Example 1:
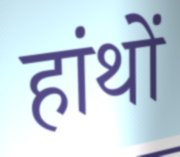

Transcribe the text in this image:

हांथों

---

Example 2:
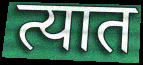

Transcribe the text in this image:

त्यात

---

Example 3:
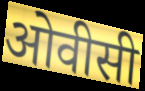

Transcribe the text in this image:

ओवीसी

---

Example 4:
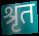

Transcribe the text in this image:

श्रृत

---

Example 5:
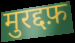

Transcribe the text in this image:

मुरद्दफ़